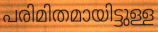
പരിമിതമായിട്ടുള്ള